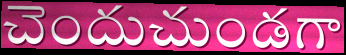
చెందుచుండగా